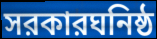
সরকারঘনিষ্ঠ